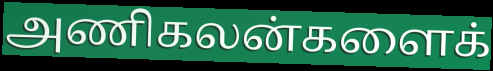
அணிகலன்களைக்